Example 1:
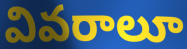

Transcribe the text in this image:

వివరాలూ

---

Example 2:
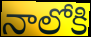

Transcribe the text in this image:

నాలోకి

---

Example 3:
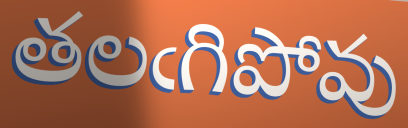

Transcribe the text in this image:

తలఁగిపోవు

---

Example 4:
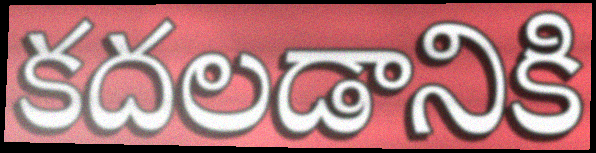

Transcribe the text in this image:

కదలడానికి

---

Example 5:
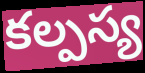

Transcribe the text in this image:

కల్పస్య